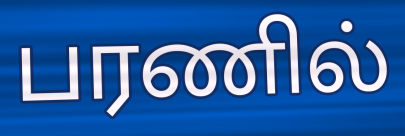
பரணில்